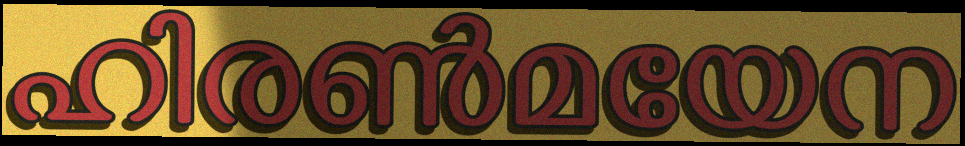
ഹിരൺമയേന